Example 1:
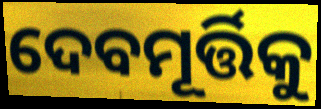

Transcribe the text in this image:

ଦେବମୂର୍ତ୍ତିକୁ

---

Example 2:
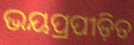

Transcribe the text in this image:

ଭୟପ୍ରପୀଡ଼ିତ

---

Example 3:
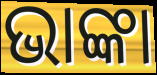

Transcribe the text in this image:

ଭାଙ୍କା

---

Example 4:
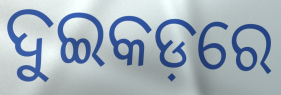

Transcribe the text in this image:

ଦୁଇକଡ଼ରେ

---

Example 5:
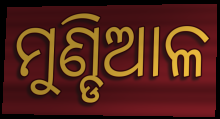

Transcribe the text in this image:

ମୁଣ୍ଡିଆଳ